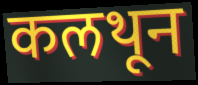
कलथून